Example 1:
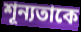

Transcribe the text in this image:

শূন্যতাকে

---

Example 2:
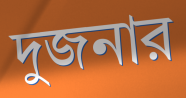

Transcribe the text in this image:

দুজনার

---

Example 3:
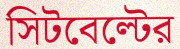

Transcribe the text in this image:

সিটবেল্টের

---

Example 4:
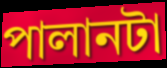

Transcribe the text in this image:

পালানটা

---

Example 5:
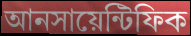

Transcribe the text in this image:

আনসায়েন্টিফিক